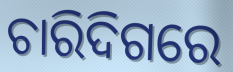
ଚାରିଦିଗରେ